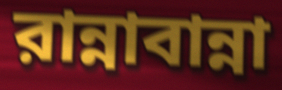
রান্নাবান্না